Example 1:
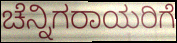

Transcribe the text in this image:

ಚೆನ್ನಿಗರಾಯರಿಗೆ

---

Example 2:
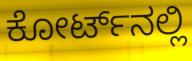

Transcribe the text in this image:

ಕೋರ್ಟ್‌ನಲ್ಲಿ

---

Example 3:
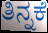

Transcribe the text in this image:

ತಿನ್ನಕೆ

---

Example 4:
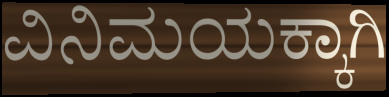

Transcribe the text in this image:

ವಿನಿಮಯಕ್ಕಾಗಿ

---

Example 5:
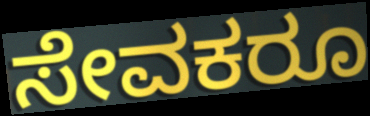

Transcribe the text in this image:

ಸೇವಕರೂ